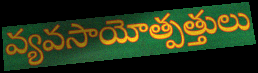
వ్యవసాయోత్పత్తులు